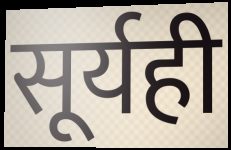
सूर्यही